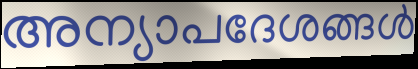
അന്യാപദേശങ്ങൾ